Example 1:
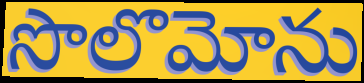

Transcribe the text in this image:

సొలొమోను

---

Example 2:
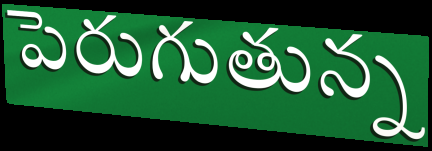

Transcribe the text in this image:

పెరుగుతున్న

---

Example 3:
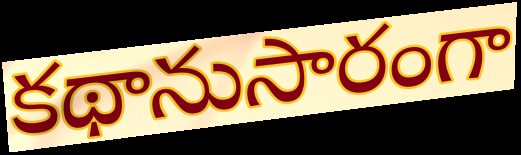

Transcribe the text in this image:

కథానుసారంగా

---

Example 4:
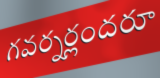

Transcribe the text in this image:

గవర్నర్లందరూ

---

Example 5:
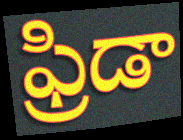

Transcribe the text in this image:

ఫ్రిడా